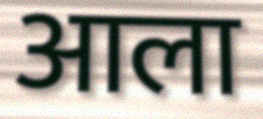
आला